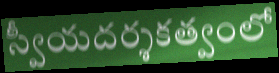
స్వీయదర్శకత్వంలో